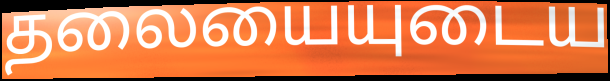
தலையையுடைய